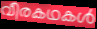
വീരകഥകൾ